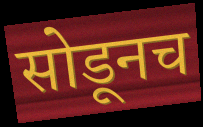
सोडूनच